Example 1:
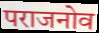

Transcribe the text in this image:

पराजनोव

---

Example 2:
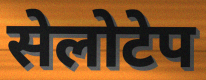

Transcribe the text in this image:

सेलोटेप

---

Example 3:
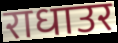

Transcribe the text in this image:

राधाउर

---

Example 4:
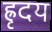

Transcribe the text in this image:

ह्रृदय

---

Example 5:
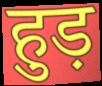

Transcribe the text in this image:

हुड़